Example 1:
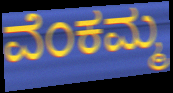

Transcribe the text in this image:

ವೆಂಕಮ್ಮ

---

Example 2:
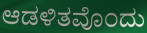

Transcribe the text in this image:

ಆಡಳಿತವೊಂದು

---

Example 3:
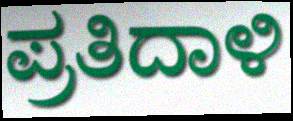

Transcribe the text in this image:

ಪ್ರತಿದಾಳಿ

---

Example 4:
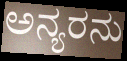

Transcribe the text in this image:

ಅನ್ಯರನು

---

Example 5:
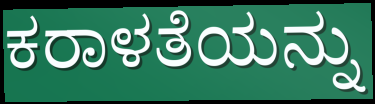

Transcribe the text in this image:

ಕರಾಳತೆಯನ್ನು